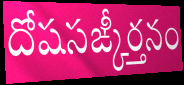
దోషసఙ్కీర్తనం